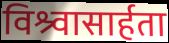
विश्र्वासार्हता